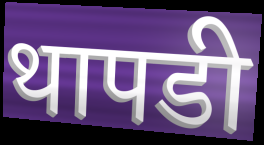
थापडी